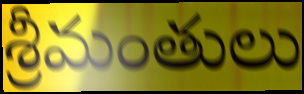
శ్రీమంతులు